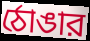
ঠোঙার